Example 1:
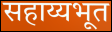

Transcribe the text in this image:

सहाय्यभूत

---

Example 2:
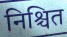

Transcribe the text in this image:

निश्चित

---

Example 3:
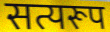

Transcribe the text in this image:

सत्यरूप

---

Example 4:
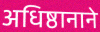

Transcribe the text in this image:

अधिष्ठानाने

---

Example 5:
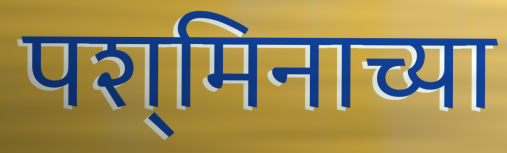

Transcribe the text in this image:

पश्मिनाच्या